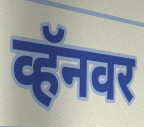
व्हॅनवर